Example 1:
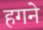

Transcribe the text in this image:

हगने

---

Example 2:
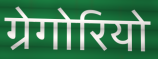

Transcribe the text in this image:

ग्रेगोरियो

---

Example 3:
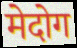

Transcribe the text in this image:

मेदोग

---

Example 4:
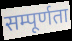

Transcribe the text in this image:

सम्पूर्णता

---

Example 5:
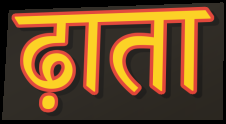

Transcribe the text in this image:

ढ़ाता